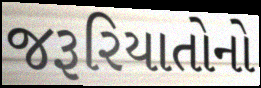
જરૂરિયાતોનો